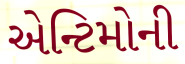
એન્ટિમોની